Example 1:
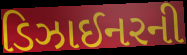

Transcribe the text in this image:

ડિઝાઈનરની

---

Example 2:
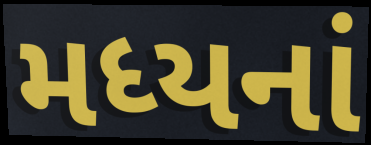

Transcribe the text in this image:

મધ્યનાં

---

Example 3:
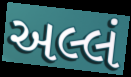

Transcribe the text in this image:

અલ્લં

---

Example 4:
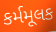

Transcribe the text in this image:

કર્મમૂલક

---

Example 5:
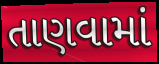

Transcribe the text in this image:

તાણવામાં